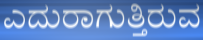
ಎದುರಾಗುತ್ತಿರುವ